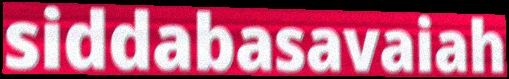
siddabasavaiah